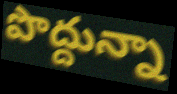
పొద్దున్నా